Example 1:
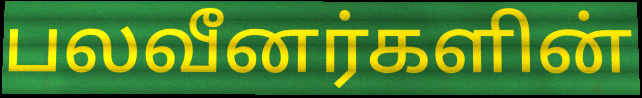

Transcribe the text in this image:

பலவீனர்களின்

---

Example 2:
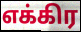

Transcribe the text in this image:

எக்கிர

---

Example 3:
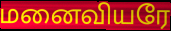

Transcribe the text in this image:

மனைவியரே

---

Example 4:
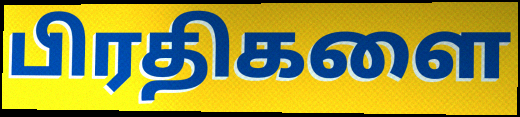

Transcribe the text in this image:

பிரதிகளை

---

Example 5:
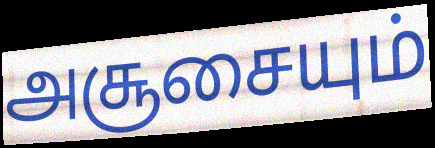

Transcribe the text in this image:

அசூசையும்